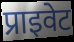
प्राइवेट